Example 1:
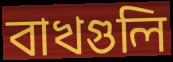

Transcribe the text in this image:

বাখগুলি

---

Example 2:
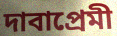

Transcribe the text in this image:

দাবাপ্রেমী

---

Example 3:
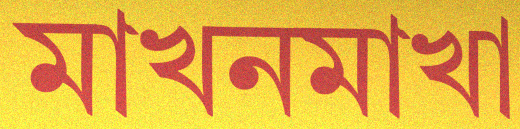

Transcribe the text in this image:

মাখনমাখা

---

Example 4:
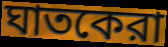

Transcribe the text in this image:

ঘাতকেরা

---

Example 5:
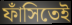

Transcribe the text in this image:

ফাঁসিতেই